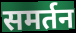
समर्तन